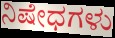
ನಿಷೇಧಗಳು